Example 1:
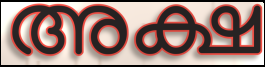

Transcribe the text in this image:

അക്ഷ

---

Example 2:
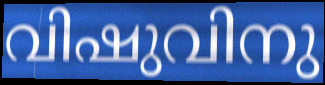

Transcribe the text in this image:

വിഷുവിനു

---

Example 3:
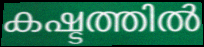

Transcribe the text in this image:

കഷ്ടത്തിൽ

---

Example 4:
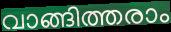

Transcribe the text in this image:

വാങ്ങിത്തരാം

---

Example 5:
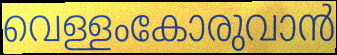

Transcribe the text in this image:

വെള്ളംകോരുവാൻ